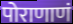
पोराणाणं